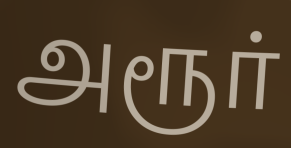
அரூர்